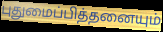
புதுமைப்பித்தனையும்